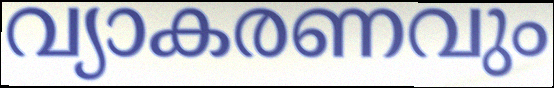
വ്യാകരണവും